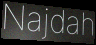
Najdah